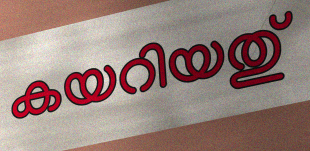
കയറിയതു്